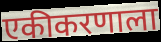
एकीकरणाला